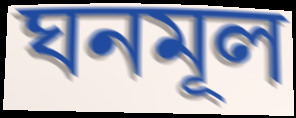
ঘনমূল